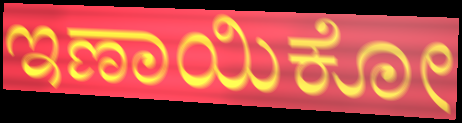
ಇಣಾಯಿಕೋ